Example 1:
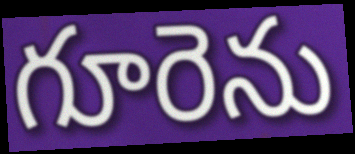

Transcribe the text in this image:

గూరెను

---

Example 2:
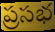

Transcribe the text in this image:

ప్రసభ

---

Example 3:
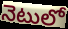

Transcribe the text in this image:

నెటులో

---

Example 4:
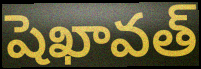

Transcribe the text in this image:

షెఖావత్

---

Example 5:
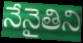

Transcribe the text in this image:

నేనైతిని